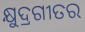
କ୍ଷୁଦ୍ରଗୀତର